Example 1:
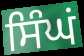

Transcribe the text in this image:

ਸਿੰਘਂ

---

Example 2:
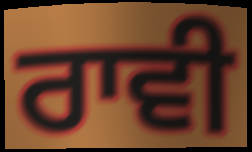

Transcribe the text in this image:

ਰਾਵੀ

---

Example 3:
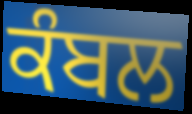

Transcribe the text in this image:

ਕੰਬਲ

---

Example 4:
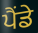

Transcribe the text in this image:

ਪੈਂਡੇ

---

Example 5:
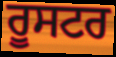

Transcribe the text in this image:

ਰੂਸਟਰ